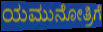
ಯಮುನೋತ್ರಿಗೆ